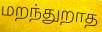
மறந்துறாத